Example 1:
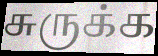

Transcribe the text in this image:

சுருக்க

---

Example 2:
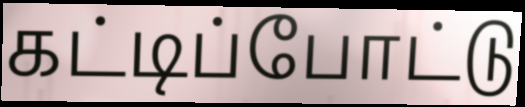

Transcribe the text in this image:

கட்டிப்போட்டு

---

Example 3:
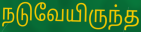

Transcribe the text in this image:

நடுவேயிருந்த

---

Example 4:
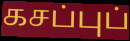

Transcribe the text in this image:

கசப்புப்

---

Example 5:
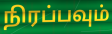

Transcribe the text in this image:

நிரப்பவும்